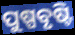
ପୁଷ୍ପବୃଷ୍ଟି